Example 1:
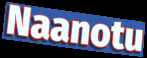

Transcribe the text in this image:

Naanotu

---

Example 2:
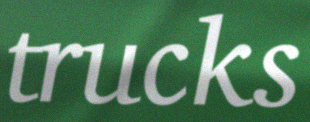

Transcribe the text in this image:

trucks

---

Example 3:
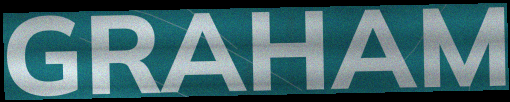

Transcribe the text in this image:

GRAHAM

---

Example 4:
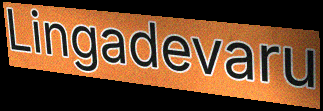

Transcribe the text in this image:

Lingadevaru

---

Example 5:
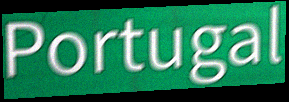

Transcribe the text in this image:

Portugal